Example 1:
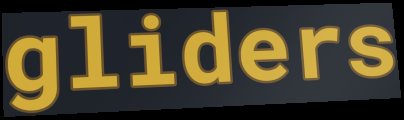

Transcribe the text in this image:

gliders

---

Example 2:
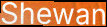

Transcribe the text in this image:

Shewan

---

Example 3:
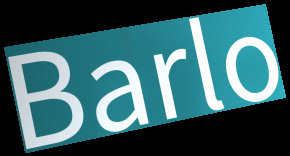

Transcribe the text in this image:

Barlo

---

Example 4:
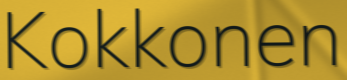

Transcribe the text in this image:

Kokkonen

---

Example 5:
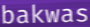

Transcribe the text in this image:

bakwas